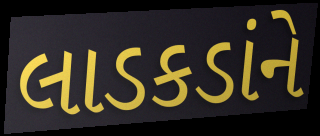
લાડકડાંને